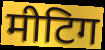
मीटिग